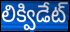
లిక్విడేట్